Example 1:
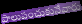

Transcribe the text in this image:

పాలుపంచుకునేవారు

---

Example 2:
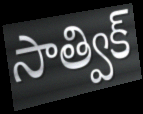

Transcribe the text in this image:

సాత్విక్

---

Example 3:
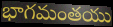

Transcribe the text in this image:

భాగమంతయు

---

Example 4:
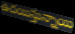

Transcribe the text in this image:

ఉదయిస్తున్నాయి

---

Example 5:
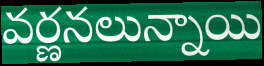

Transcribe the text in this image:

వర్ణనలున్నాయి